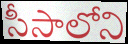
సీసాలోని